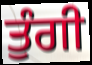
ਤੁੰਗੀ